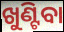
ଖୁଣ୍ଟିବା